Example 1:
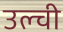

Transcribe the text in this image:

उल्ची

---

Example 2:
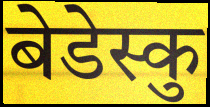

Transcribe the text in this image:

बेडेस्कु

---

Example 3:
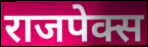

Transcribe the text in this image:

राजपेक्स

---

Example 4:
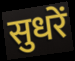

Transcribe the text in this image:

सुधरें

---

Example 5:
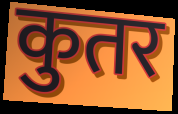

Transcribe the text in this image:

कुतर